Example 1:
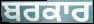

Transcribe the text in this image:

ਬਰਕਾਰ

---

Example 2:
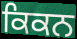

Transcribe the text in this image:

ਕਿਕਨ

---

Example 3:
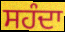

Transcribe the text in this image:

ਸਹੰਦਾ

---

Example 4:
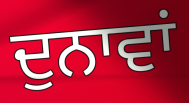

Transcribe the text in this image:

ਦੁਨਾਵਾਂ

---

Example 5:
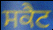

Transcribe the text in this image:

ਸਕੈਟ